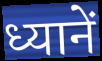
ध्यानें